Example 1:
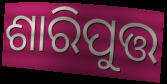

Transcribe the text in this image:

ଶାରିପୁତ୍ତ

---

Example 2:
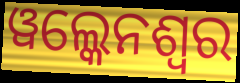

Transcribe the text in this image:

ୱଲ୍କେନଶ୍ୱର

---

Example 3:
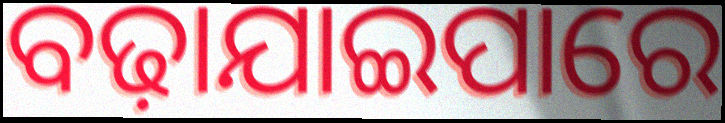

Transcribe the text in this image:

ବଢ଼ାଯାଇପାରେ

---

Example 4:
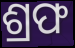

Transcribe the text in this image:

ଶ୍ରଫ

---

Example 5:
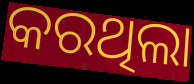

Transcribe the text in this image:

କରଥିଲା